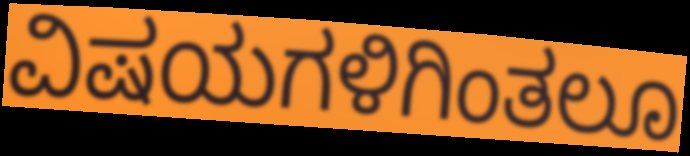
ವಿಷಯಗಳಿಗಿಂತಲೂ